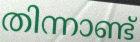
തിന്നാണ്ട്